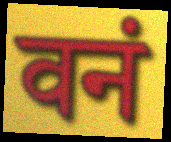
वनं